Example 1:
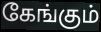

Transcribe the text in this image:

கேங்கும்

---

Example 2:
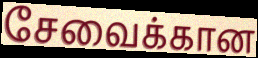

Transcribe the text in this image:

சேவைக்கான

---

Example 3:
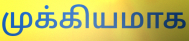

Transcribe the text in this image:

முக்கியமாக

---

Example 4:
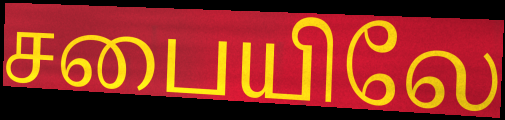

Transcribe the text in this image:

சபையிலே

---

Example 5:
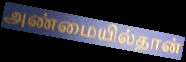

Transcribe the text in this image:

அண்மையில்தான்